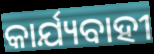
କାର୍ଯ୍ୟବାହୀ